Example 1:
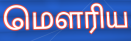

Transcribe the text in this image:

மௌரிய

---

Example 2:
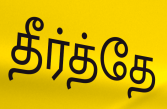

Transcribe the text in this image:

தீர்த்தே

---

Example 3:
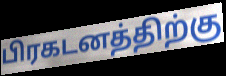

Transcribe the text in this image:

பிரகடனத்திற்கு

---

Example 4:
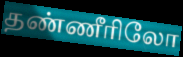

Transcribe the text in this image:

தண்ணீரிலோ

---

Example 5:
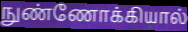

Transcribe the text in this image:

நுண்ணோக்கியால்